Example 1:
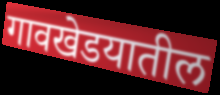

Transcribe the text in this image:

गावखेडयातील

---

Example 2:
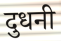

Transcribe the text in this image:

दुधनी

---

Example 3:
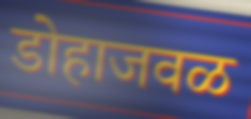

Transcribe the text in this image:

डोहाजवळ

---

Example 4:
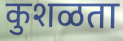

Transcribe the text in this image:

कुशळता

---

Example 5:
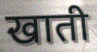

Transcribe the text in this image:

खाती